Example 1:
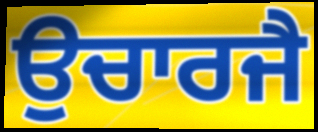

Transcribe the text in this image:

ਉਚਾਰਜੈ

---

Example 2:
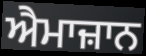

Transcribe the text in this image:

ਐਮਾਜ਼ਾਨ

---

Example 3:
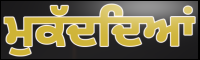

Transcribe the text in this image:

ਮੁਕੱਦਦਿਆਂ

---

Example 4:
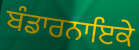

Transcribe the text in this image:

ਬੰਡਾਰਨਾਇਕੇ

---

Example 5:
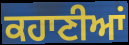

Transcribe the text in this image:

ਕਹਾਣੀਆਂ